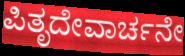
ಪಿತೃದೇವಾರ್ಚನೇ